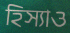
হিস্যাও